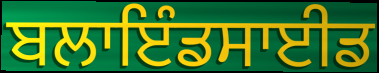
ਬਲਾਇੰਡਸਾਈਡ